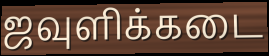
ஜவுளிக்கடை